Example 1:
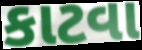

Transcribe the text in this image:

કાટવા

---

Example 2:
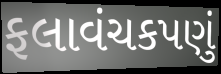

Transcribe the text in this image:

ફલાવંચકપણું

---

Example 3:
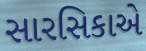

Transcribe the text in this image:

સારસિકાએ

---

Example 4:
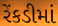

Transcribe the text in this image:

રેંકડીમાં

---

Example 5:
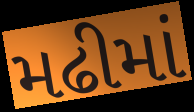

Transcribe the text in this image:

મઢીમાં